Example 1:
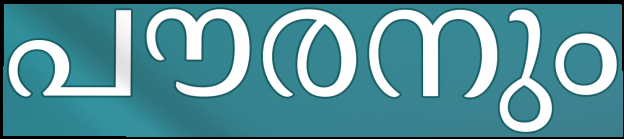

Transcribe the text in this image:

പൗരനും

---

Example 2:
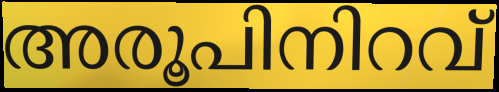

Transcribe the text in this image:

അരൂപിനിറവ്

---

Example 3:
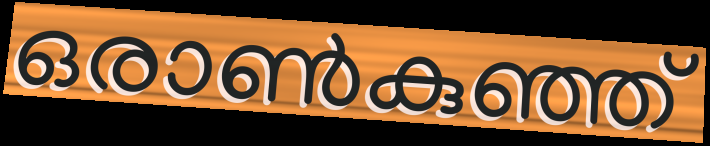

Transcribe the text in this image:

ഒരാൺകുഞ്ഞ്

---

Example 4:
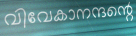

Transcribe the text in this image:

വിവേകാനന്ദന്റെ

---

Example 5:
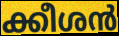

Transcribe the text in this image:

ക്കീശൻ